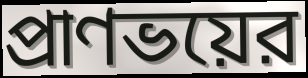
প্রাণভয়ের